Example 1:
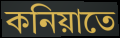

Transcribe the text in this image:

কনিয়াতে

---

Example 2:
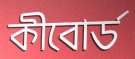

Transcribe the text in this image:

কীবোর্ড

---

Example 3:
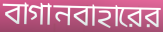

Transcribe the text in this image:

বাগানবাহারের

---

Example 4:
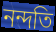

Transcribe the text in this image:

নন্দতি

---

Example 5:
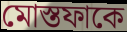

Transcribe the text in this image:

মোস্তফাকে